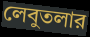
লেবুতলার